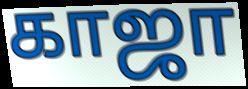
காஜா